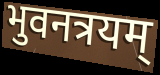
भुवनत्रयम्